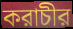
করাচীর